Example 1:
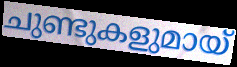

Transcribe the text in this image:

ചുണ്ടുകളുമായ്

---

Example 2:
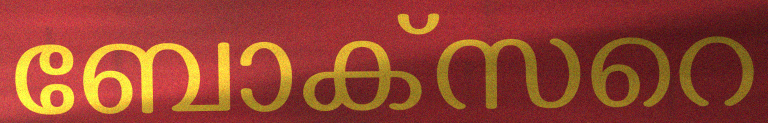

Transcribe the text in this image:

ബോക്‌സറെ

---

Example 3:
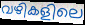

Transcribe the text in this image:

വഴികളിലെ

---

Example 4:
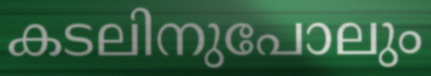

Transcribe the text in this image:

കടലിനുപോലും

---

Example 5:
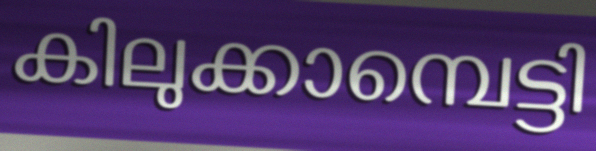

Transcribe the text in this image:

കിലുക്കാമ്പെട്ടി